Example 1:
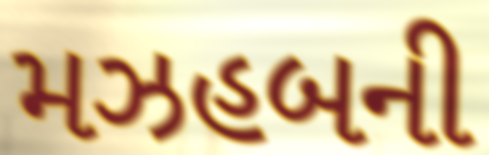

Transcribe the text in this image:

મઝહબની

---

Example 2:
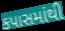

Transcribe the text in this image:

કપાસમાંથી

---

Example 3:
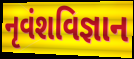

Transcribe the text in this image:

નૃવંશવિજ્ઞાન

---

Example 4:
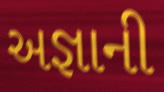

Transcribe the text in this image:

અજ્ઞાની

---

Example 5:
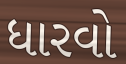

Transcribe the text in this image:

ધારવો